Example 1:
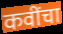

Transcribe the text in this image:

कवींचा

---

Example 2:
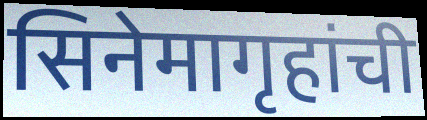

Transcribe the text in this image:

सिनेमागृहांची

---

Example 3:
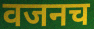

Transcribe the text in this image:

वजनच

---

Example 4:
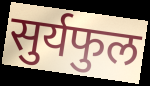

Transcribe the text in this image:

सुर्यफुल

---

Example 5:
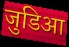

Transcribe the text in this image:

जुडिआ